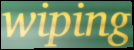
wiping